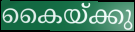
കൈയ്ക്കു